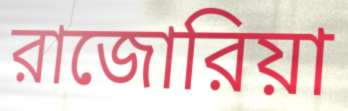
রাজোরিয়া